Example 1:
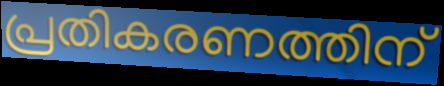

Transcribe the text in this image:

പ്രതികരണത്തിന്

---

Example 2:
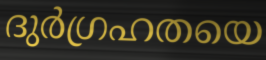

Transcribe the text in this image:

ദുർഗ്രഹതയെ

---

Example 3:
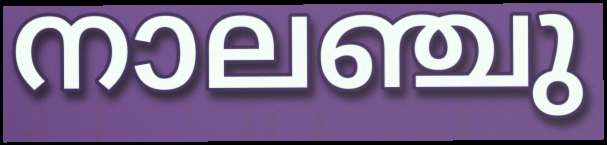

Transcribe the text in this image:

നാലഞ്ചു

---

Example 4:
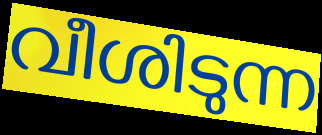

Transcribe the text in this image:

വീശിടുന്ന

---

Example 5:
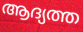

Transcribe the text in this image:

ആദ്യത്ത